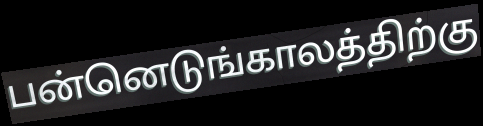
பன்னெடுங்காலத்திற்கு